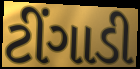
ટીંગાડી